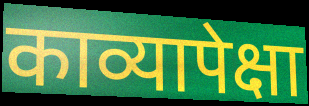
काव्यापेक्षा